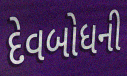
દેવબોધની